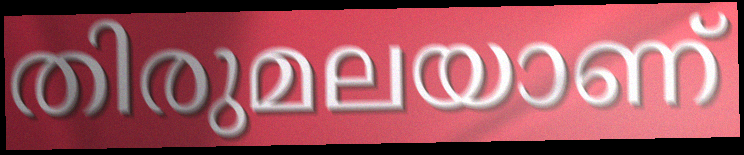
തിരുമലയാണ്